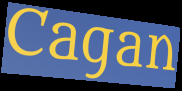
Cagan